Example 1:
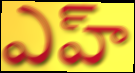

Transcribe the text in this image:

ఎహ్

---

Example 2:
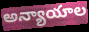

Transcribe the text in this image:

అన్యాయాల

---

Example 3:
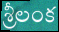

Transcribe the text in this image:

శ్రీలంక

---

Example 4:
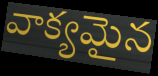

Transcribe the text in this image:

వాక్యమైన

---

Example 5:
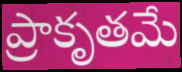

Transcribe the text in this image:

ప్రాకృతమే